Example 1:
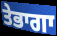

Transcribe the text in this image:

ਤੇਭਾਗਾ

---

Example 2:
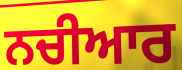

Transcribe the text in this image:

ਨਚੀਆਰ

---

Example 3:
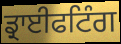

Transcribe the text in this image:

ਡ੍ਰਾਈਫਟਿੰਗ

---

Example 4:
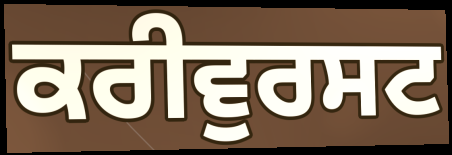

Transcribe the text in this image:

ਕਰੀਵੁਰਸਟ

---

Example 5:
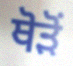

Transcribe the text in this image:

ਥੋੜੋਂ